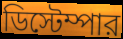
ডিস্টেম্পার